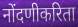
नोंदणीकरिता